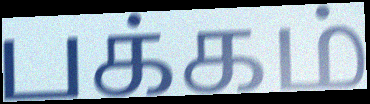
பக்கம்